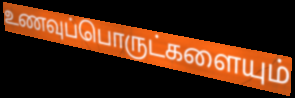
உணவுப்பொருட்களையும்